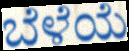
ಬೆಳೆಯೆ